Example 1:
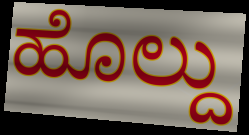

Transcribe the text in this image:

ಹೊಲ್ದು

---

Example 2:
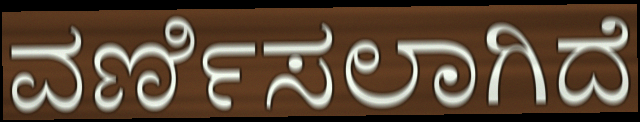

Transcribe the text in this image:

ವರ್ಣಿಸಲಾಗಿದೆ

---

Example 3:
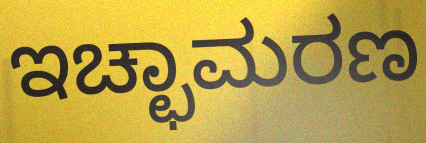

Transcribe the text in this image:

ಇಚ್ಛಾಮರಣ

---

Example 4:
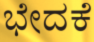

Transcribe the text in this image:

ಭೇದಕೆ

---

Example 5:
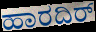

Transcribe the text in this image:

ಹಾರದಿರ್